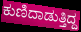
ಕುಣಿದಾಡುತ್ತಿದ್ದ